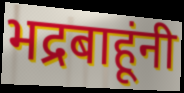
भद्रबाहूंनी